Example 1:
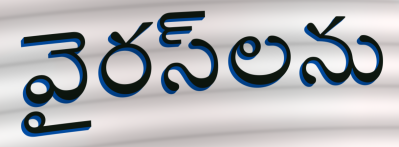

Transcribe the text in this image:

వైరస్‌లను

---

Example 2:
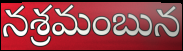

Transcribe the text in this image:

నశ్రమంబున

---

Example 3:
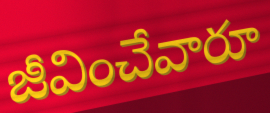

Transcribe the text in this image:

జీవించేవారూ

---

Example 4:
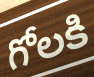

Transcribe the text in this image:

గోలకి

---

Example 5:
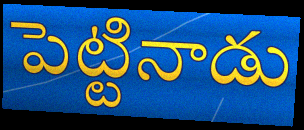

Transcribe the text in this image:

పెట్టినాడు